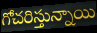
గోచరిస్తున్నాయి